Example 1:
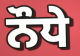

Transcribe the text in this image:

ਨੌਧੇ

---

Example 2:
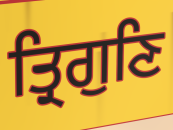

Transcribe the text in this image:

ਤ੍ਰਿਗੁਣਿ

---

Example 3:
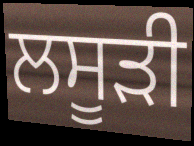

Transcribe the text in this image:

ਲਸੂੜੀ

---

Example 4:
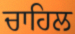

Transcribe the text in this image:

ਚਾਹਿਲ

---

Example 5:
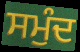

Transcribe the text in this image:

ਸਮੁੰਦ